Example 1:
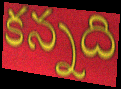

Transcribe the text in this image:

కన్నది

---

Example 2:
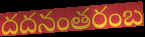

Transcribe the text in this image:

దదనంతరంబ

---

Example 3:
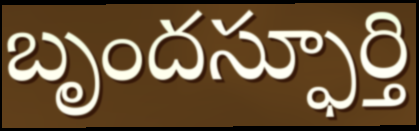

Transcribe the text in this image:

బృందస్ఫూర్తి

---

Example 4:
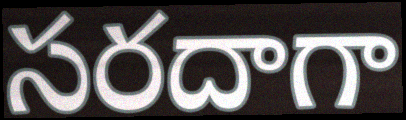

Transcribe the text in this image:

సరదాగా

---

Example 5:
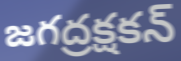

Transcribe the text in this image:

జగద్రక్షకన్